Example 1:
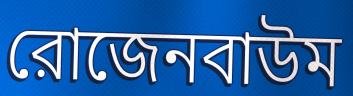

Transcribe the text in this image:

রোজেনবাউম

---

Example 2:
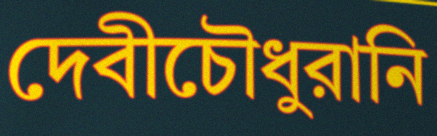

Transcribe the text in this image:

দেবীচৌধুরানি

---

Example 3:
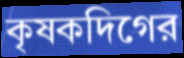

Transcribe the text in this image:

কৃষকদিগের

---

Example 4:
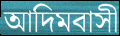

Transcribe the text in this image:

আদিমবাসী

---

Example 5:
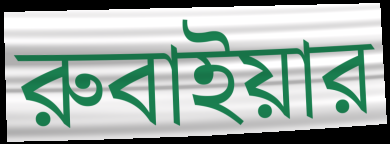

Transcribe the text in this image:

রুবাইয়ার